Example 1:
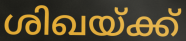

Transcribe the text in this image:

ശിഖയ്ക്ക്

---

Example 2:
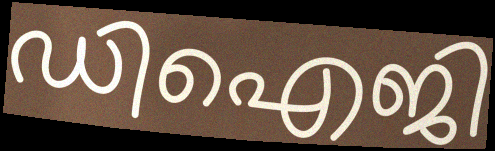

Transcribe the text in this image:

ഡിഐജി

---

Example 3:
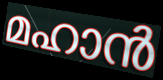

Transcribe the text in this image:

മഹാൻ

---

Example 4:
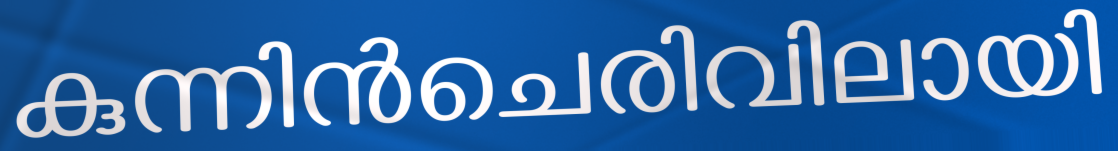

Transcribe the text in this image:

കുന്നിൻചെരിവിലായി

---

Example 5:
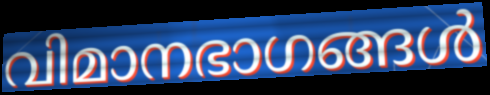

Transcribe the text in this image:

വിമാനഭാഗങ്ങൾ